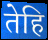
तेहि